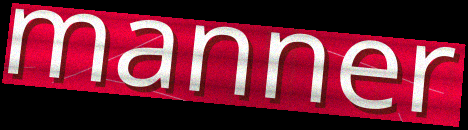
manner